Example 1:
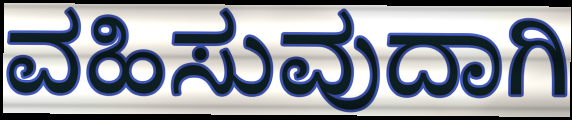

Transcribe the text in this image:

ವಹಿಸುವುದಾಗಿ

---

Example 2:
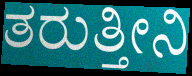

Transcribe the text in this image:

ತರುತ್ತೀನಿ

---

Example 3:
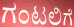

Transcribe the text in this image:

ಗಂಟಲಿಗೆ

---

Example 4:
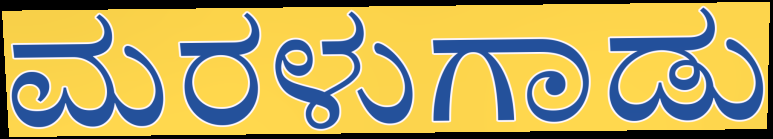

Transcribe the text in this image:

ಮರಳುಗಾಡು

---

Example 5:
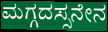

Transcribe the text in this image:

ಮಗ್ಗದಸ್ಸನೇನ